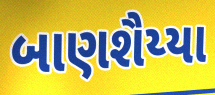
બાણશૈય્યા